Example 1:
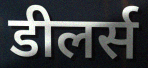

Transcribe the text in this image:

डीलर्स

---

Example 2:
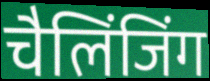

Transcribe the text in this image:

चैलिंजिंग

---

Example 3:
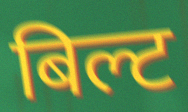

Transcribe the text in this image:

बिल्‍ट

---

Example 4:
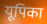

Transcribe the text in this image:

यूपिका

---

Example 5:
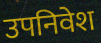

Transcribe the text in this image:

उपनिवेश